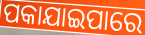
ପକାଯାଇପାରେ